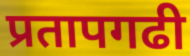
प्रतापगढी